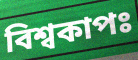
বিশ্বকাপঃ